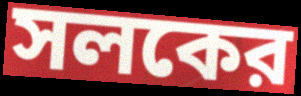
সলকের